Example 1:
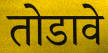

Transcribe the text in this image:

तोडावे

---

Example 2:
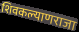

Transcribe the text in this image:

शिवकल्याणराजा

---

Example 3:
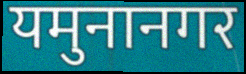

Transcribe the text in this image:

यमुनानगर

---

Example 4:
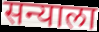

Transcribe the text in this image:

सन्याला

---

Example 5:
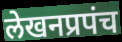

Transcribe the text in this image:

लेखनप्रपंच